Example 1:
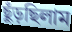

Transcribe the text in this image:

ছুঁড়ছিলাম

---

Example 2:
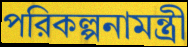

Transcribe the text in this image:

পরিকল্পনামন্ত্রী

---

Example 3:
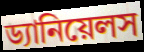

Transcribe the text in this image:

ড্যানিয়েলস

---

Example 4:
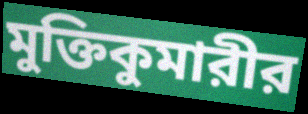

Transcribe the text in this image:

মুক্তিকুমারীর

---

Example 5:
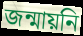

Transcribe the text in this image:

জন্মায়নি